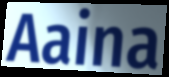
Aaina